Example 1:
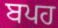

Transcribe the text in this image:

ਬਪਹ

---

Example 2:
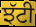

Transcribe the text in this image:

ਝੱਟੀ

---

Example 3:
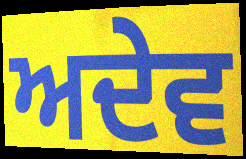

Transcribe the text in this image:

ਅਦੇਵ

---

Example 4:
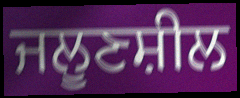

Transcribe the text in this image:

ਜਲੂਣਸ਼ੀਲ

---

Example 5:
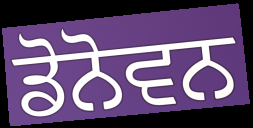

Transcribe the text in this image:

ਡੋਨੋਵਨ